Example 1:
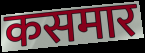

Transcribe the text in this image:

कसमार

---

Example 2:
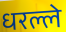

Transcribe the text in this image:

धरल्ले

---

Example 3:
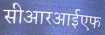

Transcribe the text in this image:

सीआरआईएफ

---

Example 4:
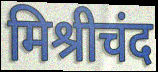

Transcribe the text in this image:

मिश्रीचंद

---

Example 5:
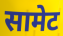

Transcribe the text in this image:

सामेट